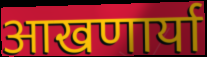
आखणार्या